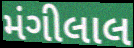
મંગીલાલ